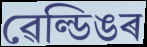
ৱেল্ডিঙৰ